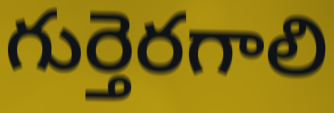
గుర్తెరగాలి